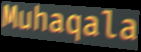
Muhaqala